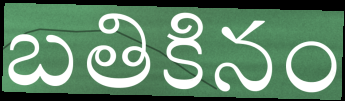
బతికినం